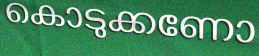
കൊടുക്കണോ